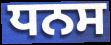
ਧਨਸ